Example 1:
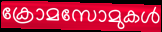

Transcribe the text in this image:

ക്രോമസോമുകൾ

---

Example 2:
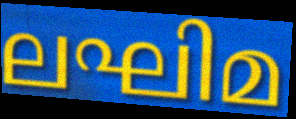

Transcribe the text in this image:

ലഘിമ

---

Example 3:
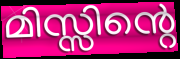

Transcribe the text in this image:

മിസ്സിന്റെ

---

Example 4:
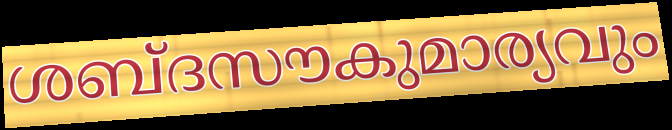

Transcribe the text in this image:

ശബ്ദസൗകുമാര്യവും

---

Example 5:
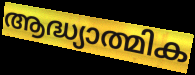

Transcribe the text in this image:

ആദ്ധ്യാത്മിക